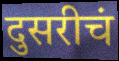
दुसरीचं